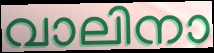
വാലിനാ